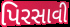
પિરસાવી